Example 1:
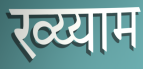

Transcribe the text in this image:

ख्य्याम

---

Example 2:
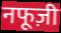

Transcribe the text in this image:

नफूज़ी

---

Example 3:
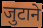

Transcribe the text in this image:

जुटाने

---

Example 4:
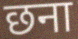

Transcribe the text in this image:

छना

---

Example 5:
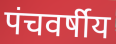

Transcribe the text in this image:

पंचवर्षीय